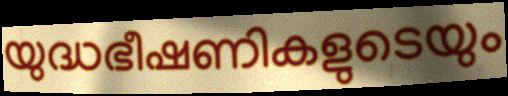
യുദ്ധഭീഷണികളുടെയും